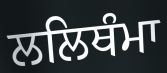
ਲਲਿਥੰਮਾ